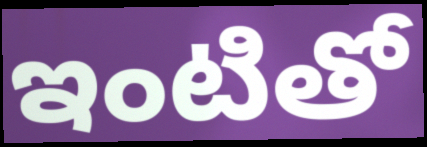
ఇంటితో